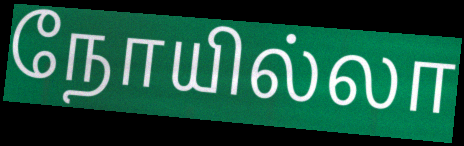
நோயில்லா